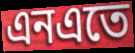
এনএতে